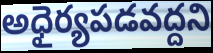
అధైర్యపడవద్దని